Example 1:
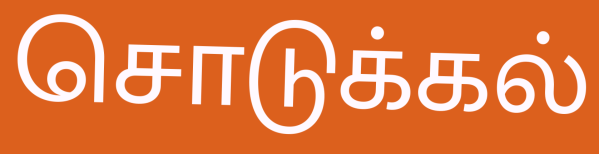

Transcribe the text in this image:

சொடுக்கல்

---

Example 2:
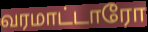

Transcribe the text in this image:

வரமாட்டாரோ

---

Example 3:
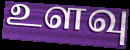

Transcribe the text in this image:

உளவு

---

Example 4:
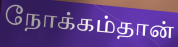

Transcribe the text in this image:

நோக்கம்தான்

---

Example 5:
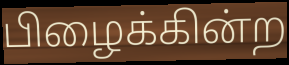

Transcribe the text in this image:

பிழைக்கின்ற